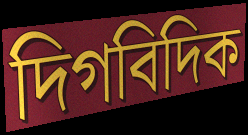
দিগবিদিক